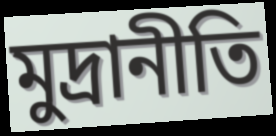
মুদ্রানীতি